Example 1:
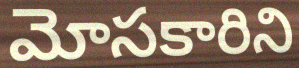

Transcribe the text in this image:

మోసకారిని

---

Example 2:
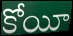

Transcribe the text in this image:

కోయీ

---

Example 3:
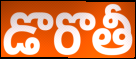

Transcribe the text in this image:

డొరొతీ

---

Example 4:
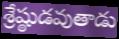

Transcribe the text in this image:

శ్రేష్ఠుడవుతాడు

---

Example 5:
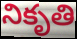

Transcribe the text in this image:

నికృతి